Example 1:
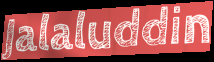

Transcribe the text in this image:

Jalaluddin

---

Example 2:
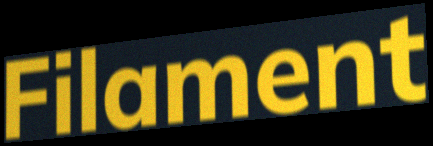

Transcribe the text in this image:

Filament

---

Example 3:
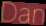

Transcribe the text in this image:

Dan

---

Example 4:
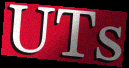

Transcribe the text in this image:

UTs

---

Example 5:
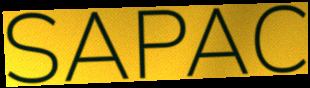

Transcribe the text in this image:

SAPAC